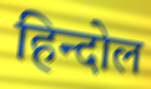
हिन्दोल